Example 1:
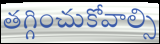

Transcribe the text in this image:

తగ్గించుకోవాల్సి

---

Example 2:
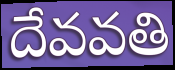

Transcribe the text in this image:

దేవవతి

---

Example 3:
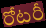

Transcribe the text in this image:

రోటరీ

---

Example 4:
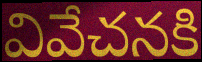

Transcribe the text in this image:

వివేచనకి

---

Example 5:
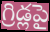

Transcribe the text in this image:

గ్రిడ్లపై